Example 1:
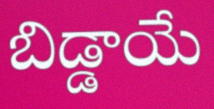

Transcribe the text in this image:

బిడ్డాయే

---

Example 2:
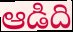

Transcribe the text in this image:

ఆడిది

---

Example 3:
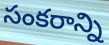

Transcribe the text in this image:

సంకరాన్ని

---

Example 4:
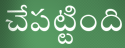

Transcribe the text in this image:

చేపట్టింది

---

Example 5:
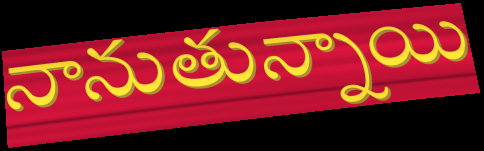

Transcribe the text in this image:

నానుతున్నాయి